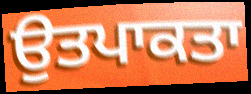
ਉਤਪਾਕਤਾ